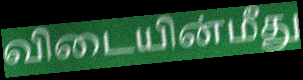
விடையின்மீது